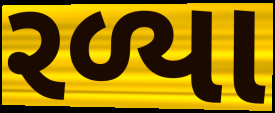
રળ્યા